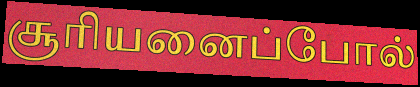
சூரியனைப்போல்